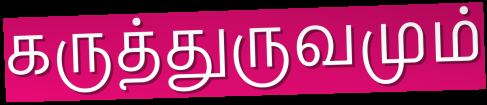
கருத்துருவமும்